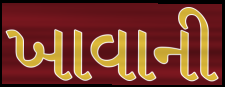
ખાવાની